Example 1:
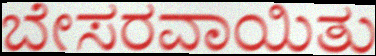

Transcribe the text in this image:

ಬೇಸರವಾಯಿತು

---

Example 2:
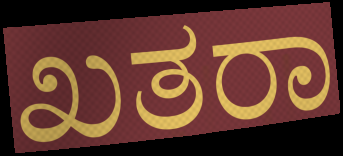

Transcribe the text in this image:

ಖತರಾ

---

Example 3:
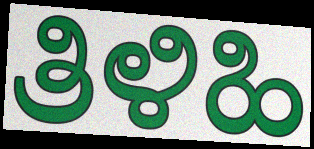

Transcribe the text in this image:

ತಿಳಿಹಿ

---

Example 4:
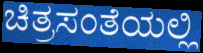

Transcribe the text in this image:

ಚಿತ್ರಸಂತೆಯಲ್ಲಿ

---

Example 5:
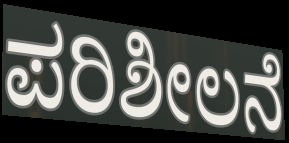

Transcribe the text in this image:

ಪರಿಶೀಲನೆ